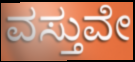
ವಸ್ತುವೇ